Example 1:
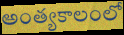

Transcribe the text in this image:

అంత్యకాలంలో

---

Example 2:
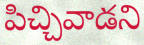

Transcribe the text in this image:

పిచ్చివాడని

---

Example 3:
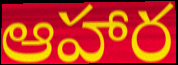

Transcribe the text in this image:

ఆహార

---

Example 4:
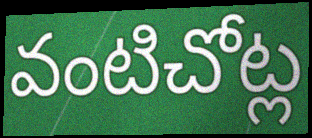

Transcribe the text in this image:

వంటిచోట్ల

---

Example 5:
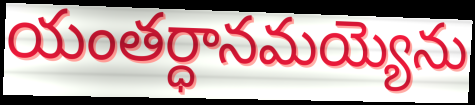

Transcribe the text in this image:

యంతర్ధానమయ్యెను